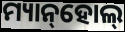
ମ୍ୟାନ୍‌ହୋଲ୍